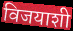
विजयाशी